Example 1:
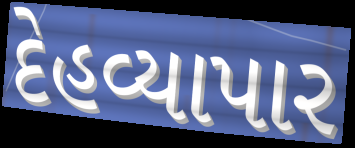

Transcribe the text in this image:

દેહવ્યાપાર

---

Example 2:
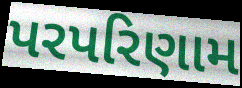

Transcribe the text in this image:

પરપરિણામ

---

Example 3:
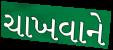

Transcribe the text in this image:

ચાખવાને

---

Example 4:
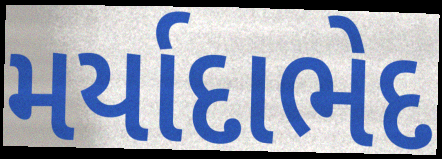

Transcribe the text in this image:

મર્યાદાભેદ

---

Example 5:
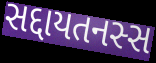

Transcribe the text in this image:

સદ્દાયતનસ્સ